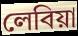
লেবিয়া